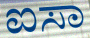
ಐಸಾ